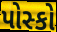
પોસ્કો